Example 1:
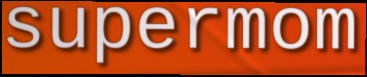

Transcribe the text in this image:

supermom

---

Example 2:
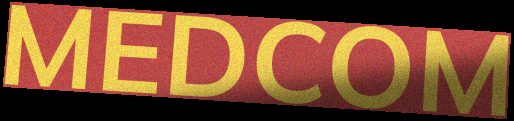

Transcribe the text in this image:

MEDCOM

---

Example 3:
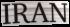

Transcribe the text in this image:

IRAN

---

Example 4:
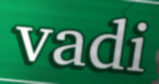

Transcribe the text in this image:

vadi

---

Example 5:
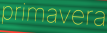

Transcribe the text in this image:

primavera